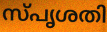
സ്പൃശതി